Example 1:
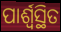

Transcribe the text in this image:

ପାର୍ଶ୍ୱସ୍ଥିତ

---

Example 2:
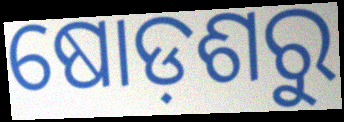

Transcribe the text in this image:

ଷୋଡ଼ଶରୁ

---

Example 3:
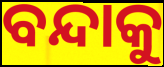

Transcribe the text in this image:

ବନ୍ଦାକୁ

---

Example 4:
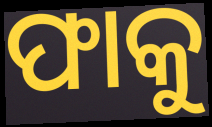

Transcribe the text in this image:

ଫାକୁ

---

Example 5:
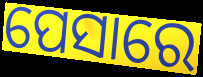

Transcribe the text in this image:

ପେସାରେ